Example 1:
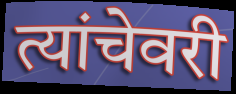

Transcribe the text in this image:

त्यांचेवरी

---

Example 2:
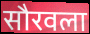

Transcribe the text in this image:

सौरवला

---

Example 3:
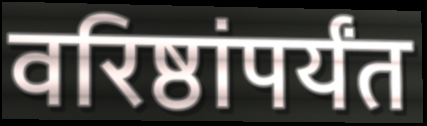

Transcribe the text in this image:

वरिष्ठांपर्यंत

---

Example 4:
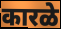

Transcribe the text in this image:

कारळे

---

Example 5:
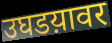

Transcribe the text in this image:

उघडय़ावर